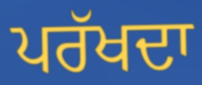
ਪਰੱਖਦਾ